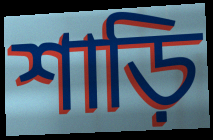
শাড়ি